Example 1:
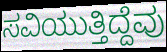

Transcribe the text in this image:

ಸವಿಯುತ್ತಿದ್ದೆವು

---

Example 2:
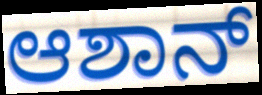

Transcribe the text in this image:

ಆಶಾನ್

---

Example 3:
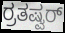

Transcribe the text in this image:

ರ್ರತಷ್ವರ್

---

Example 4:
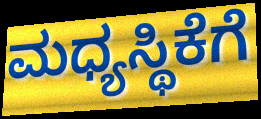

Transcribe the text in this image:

ಮಧ್ಯಸ್ಥಿಕೆಗೆ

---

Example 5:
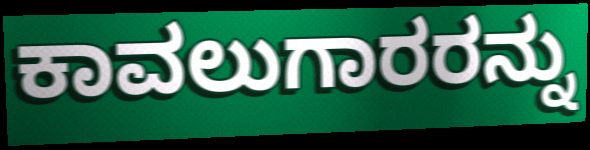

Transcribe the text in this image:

ಕಾವಲುಗಾರರನ್ನು